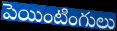
పెయింటింగులు